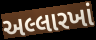
અલ્લારખાં